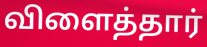
விளைத்தார்